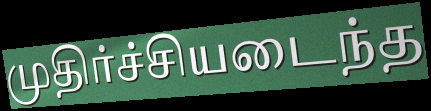
முதிர்ச்சியடைந்த